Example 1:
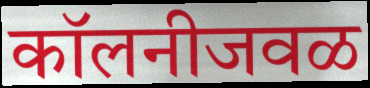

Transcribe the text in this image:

कॉलनीजवळ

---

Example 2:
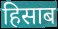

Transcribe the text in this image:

हिसाब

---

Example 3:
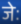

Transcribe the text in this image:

जेः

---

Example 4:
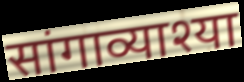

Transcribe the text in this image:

सांगाव्याश्या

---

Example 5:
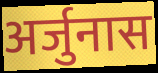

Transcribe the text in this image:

अर्जुनास